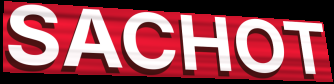
SACHOT